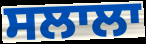
ਸਲਾਲਾ